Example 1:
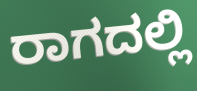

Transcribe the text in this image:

ರಾಗದಲ್ಲಿ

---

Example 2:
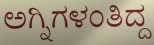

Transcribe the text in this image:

ಅಗ್ನಿಗಳಂತಿದ್ದ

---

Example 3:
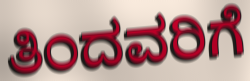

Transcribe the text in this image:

ತಿಂದವರಿಗೆ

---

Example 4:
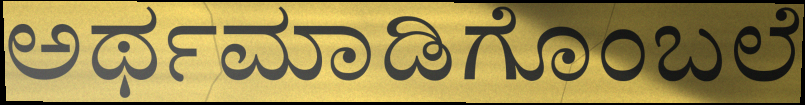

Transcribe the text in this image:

ಅರ್ಥಮಾಡಿಗೊಂಬಲೆ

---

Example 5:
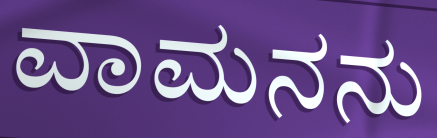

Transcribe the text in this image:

ವಾಮನನು